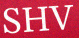
SHV